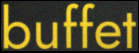
buffet